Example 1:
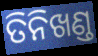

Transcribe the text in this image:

ତିନିଖଣ୍ଡ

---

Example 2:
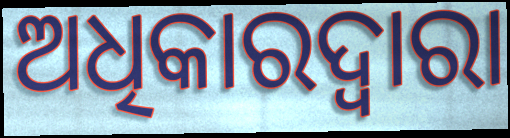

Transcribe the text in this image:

ଅଧିକାରଦ୍ୱାରା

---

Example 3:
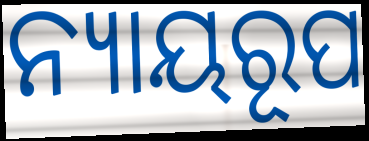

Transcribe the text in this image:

ନ୍ୟାୟରୂପ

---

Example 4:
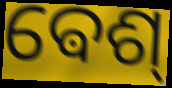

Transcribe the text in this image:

ଵେଶ୍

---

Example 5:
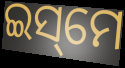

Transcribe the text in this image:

ଇସ୍‌ମେ